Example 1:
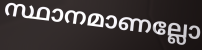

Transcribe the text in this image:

സ്ഥാനമാണല്ലോ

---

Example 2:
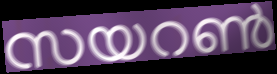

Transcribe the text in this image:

സയറൺ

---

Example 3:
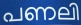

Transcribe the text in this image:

പണലി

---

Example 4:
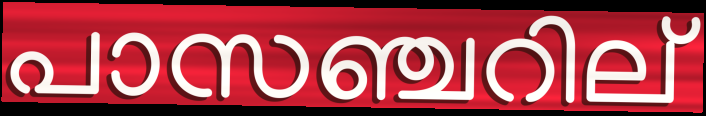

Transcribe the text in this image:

പാസഞ്ചറില്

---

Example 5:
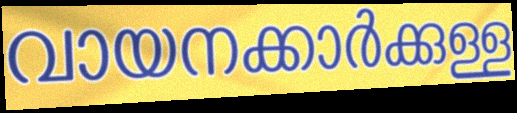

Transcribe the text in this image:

വായനക്കാർക്കുള്ള